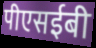
पीएसईबी